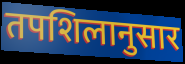
तपशिलानुसार